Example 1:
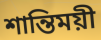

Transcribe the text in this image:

শান্তিময়ী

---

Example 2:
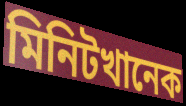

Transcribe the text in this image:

মিনিটখানেক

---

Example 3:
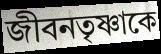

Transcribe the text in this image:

জীবনতৃষ্ণাকে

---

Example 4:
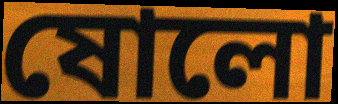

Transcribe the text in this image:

ষোলো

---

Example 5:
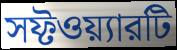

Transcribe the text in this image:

সফ্টওয়্যারটি